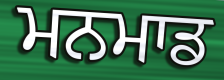
ਮਨਮਾਡ